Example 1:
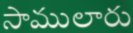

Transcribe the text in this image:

సాములారు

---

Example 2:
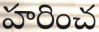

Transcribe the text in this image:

హరించ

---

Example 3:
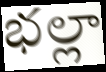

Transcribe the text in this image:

భల్లా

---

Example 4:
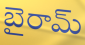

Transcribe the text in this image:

బైరామ్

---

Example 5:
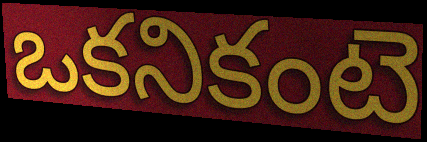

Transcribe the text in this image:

ఒకనికంటె